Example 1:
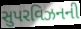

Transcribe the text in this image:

સુપરવિઝનની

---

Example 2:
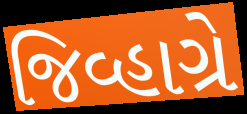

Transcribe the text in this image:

જિવ્હાગ્રે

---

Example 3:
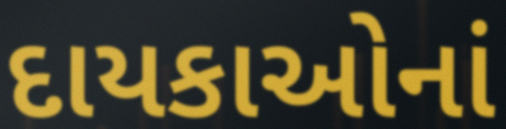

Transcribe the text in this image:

દાયકાઓનાં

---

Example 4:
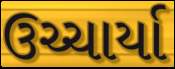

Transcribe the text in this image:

ઉચ્ચાર્યા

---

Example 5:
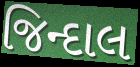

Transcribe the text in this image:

જિન્દાલ